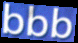
bbb